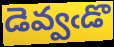
డెవ్వఁడొ